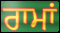
ਰਾਮਾਂ